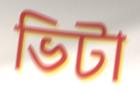
ভিটা